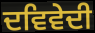
ਦਵਿਵੇਦੀ